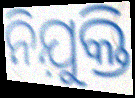
ନିଯ଼ୁକ୍ତି